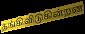
தங்கிவிடுகின்றன